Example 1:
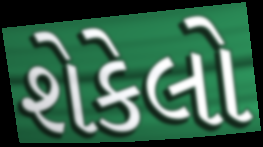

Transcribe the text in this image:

શેકેલો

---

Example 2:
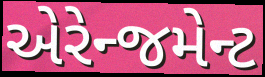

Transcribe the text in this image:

એરેન્જમેન્ટ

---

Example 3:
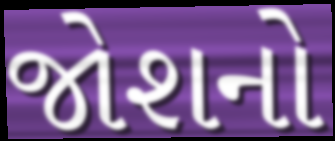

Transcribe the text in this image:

જોશનો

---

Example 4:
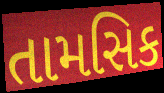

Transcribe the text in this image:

તામસિક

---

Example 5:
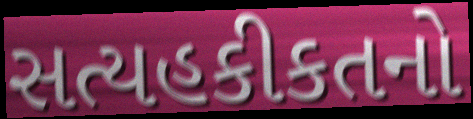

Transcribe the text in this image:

સત્યહકીકતનો